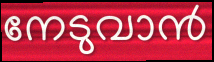
നേടുവാൻ